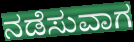
ನಡೆಸುವಾಗ